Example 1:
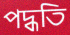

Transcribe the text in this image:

পদ্ধতি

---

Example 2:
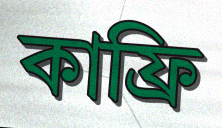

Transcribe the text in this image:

কাফ্রি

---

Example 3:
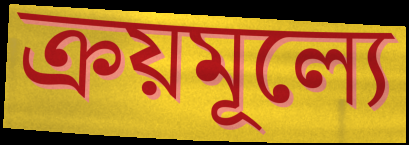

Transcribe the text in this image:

ক্রয়মূল্যে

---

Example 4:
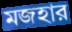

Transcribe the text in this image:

মজহার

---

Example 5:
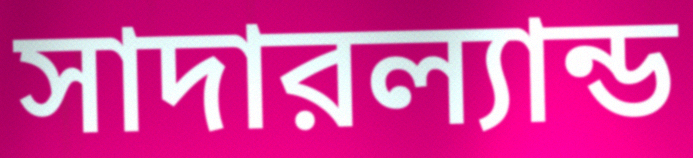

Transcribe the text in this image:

সাদারল্যান্ড